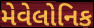
મેવેલોનિક